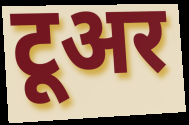
टूअर